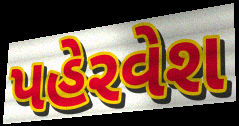
પહેરવેશ